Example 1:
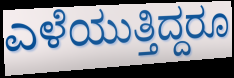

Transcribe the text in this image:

ಎಳೆಯುತ್ತಿದ್ದರೂ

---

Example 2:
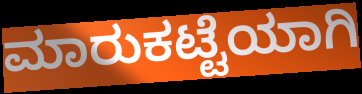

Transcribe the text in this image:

ಮಾರುಕಟ್ಟೆಯಾಗಿ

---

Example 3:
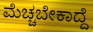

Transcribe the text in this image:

ಮೆಚ್ಚಬೇಕಾದ್ದೆ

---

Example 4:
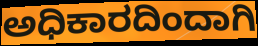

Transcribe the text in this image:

ಅಧಿಕಾರದಿಂದಾಗಿ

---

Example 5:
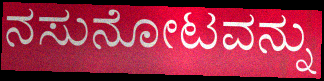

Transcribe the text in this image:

ನಸುನೋಟವನ್ನು